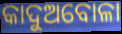
କାଦୁଅବୋଳା